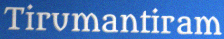
Tirumantiram